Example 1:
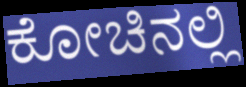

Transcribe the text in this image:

ಕೋಚಿನಲ್ಲಿ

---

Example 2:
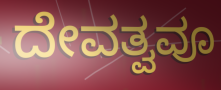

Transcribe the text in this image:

ದೇವತ್ವವೂ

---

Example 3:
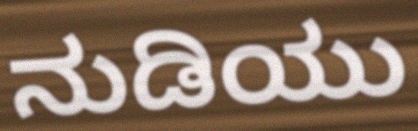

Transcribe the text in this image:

ನುಡಿಯು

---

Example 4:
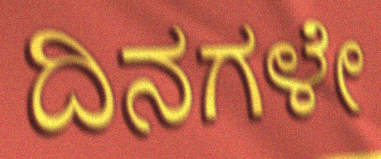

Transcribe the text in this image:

ದಿನಗಳೇ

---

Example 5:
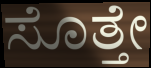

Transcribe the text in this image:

ಸೊತ್ತೇ